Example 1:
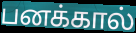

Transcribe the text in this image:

பனக்கால்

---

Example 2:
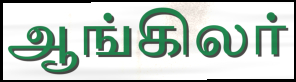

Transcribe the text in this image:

ஆங்கிலர்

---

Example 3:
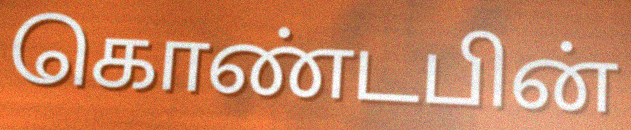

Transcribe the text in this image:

கொண்டபின்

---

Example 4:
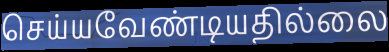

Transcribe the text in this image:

செய்யவேண்டியதில்லை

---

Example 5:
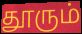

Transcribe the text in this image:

தூரும்